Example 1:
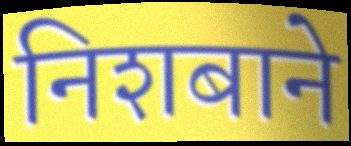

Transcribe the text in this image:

निशबाने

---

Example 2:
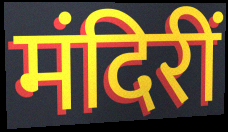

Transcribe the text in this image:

मंदिरीं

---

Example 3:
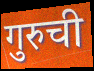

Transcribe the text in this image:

गुरुची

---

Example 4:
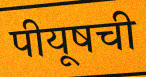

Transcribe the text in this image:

पीयूषची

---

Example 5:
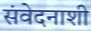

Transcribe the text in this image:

संवेदनाशी